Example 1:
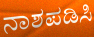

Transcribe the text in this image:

ನಾಶಪಡಿಸಿ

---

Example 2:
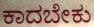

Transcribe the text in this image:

ಕಾದಬೇಕು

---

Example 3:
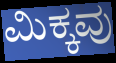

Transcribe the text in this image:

ಮಿಕ್ಕವು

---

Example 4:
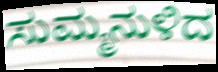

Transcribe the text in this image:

ಸುಮ್ಮನುಳಿದ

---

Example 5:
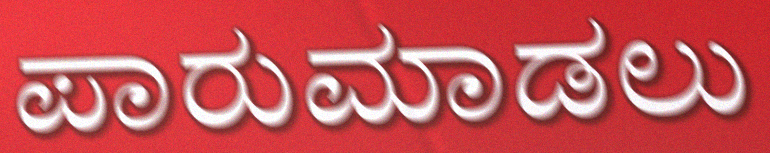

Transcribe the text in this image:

ಪಾರುಮಾಡಲು